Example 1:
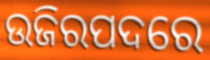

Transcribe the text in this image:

ଉଜିରପଦରେ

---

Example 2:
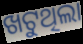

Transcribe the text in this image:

ଖଟୁଥିଲା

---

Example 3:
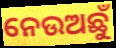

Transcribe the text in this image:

ନେଉଅଛୁଁ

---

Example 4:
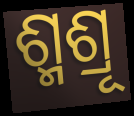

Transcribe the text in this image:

ଶ୍ମଶ୍ରୂ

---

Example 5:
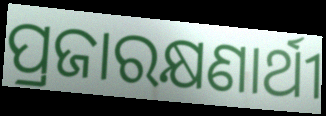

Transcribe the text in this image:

ପ୍ରଜାରକ୍ଷଣାର୍ଥୀ